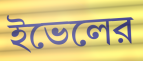
ইভেলের